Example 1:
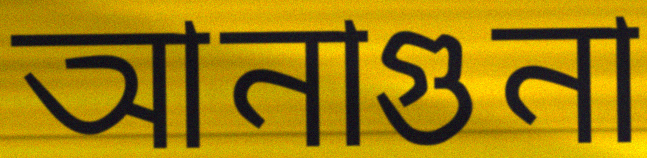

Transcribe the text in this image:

আনাগুনা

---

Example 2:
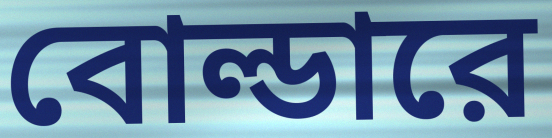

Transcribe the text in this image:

বোল্ডারে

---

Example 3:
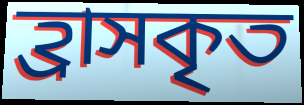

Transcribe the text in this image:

হ্রাসকৃত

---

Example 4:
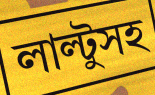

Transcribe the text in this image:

লাল্টুসহ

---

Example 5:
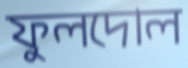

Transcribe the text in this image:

ফুলদোল